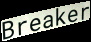
Breaker